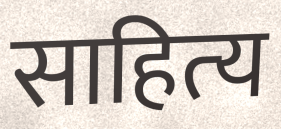
साहित्‍य